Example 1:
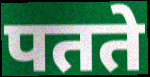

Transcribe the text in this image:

पतते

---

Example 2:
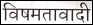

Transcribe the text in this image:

विषमतावादी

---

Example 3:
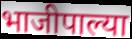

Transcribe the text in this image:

भाजीपाल्या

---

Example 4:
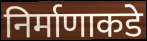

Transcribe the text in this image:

निर्माणाकडे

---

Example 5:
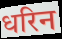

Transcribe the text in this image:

धरिन